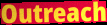
Outreach